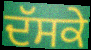
ਦੱਸਕੇ